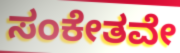
ಸಂಕೇತವೇ